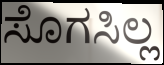
ಸೊಗಸಿಲ್ಲ